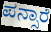
ಪನ್ಸಾರೆ